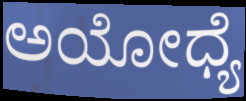
ಅಯೋಧ್ಯೆ